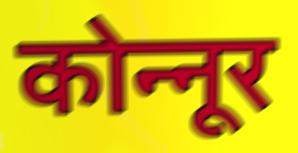
कोन्नूर